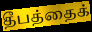
தீபத்தைக்